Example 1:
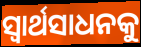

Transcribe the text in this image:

ସ୍ଵାର୍ଥସାଧନକୁ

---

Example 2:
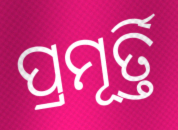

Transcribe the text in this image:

ପ୍ରମୂର୍ତ୍ତି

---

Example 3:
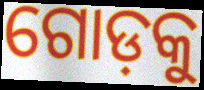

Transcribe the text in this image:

ଗୋଡ଼କୁ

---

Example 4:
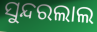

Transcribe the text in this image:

ସୁନ୍ଦରଲାଲ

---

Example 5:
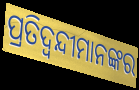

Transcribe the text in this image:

ପ୍ରତିଦ୍ୱନ୍ଦୀମାନଙ୍କର